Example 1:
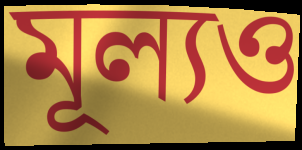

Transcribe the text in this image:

মূল্যও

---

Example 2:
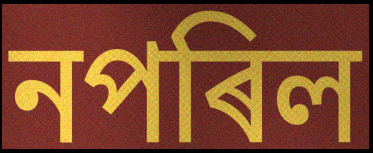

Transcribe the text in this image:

নপৰিল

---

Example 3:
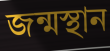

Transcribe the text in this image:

জন্মস্থান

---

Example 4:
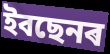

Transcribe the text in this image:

ইবছেনৰ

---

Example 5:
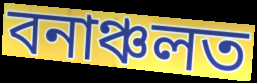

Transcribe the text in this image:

বনাঞ্চলত